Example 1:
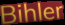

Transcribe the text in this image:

Bihler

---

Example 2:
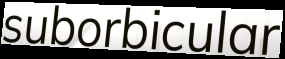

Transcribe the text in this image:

suborbicular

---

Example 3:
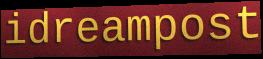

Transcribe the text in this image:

idreampost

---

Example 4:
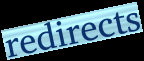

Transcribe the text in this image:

redirects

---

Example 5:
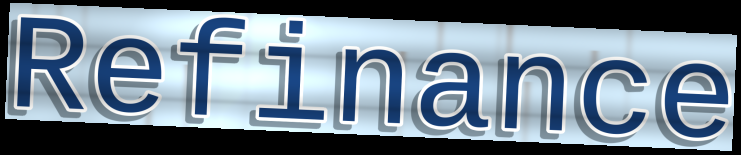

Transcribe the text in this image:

Refinance